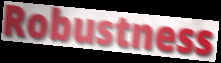
Robustness